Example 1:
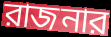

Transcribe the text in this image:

রাজনার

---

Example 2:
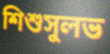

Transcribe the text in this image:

শিশুসুলভ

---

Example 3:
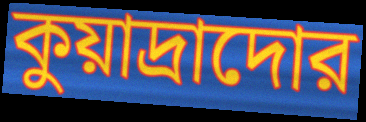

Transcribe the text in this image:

কুয়াদ্রাদোর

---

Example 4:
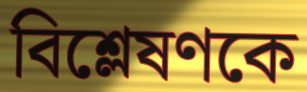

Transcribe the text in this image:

বিশ্লেষণকে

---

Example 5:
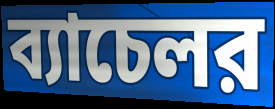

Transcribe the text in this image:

ব্যাচেলর